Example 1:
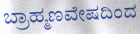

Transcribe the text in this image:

ಬ್ರಾಹ್ಮಣವೇಷದಿಂದ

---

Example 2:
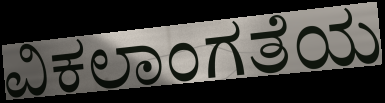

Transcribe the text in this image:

ವಿಕಲಾಂಗತೆಯ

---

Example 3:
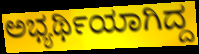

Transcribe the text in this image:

ಅಭ್ಯರ್ಥಿಯಾಗಿದ್ದ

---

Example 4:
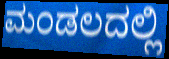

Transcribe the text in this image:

ಮಂಡಲದಲ್ಲಿ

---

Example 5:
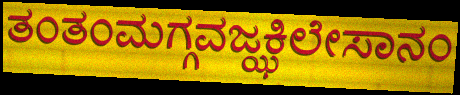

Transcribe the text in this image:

ತಂತಂಮಗ್ಗವಜ್ಝಕಿಲೇಸಾನಂ